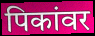
पिकांवर